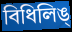
বিধিলিঙ্